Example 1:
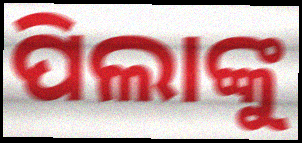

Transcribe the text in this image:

ପିଲାଙ୍କୁ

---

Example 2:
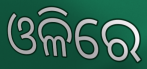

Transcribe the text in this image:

ଓଳିରେ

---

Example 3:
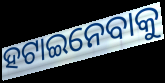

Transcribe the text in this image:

ହଟାଇନେବାକୁ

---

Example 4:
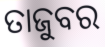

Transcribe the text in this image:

ତାଜୁବର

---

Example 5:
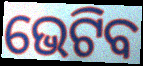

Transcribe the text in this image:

ଭେଟିବ